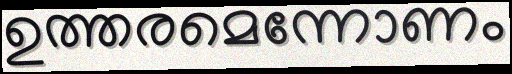
ഉത്തരമെന്നോണം